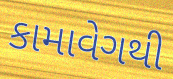
કામાવેગથી